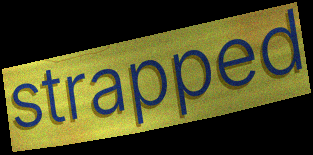
strapped